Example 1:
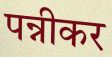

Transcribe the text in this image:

पन्नीकर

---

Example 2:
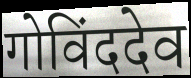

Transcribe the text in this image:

गोविंददेव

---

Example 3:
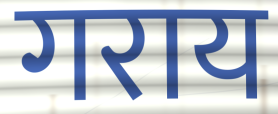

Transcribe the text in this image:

गराय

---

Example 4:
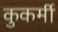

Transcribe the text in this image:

कुकर्मी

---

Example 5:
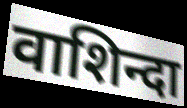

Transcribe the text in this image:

वाशिन्दा